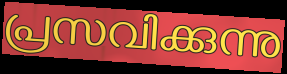
പ്രസവിക്കുന്നു